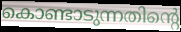
കൊണ്ടാടുന്നതിന്റെ